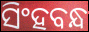
ସିଂହବନ୍ଧ